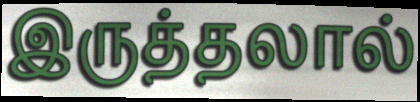
இருத்தலால்